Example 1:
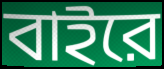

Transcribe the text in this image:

বাইরে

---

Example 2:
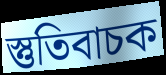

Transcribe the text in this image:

স্তুতিবাচক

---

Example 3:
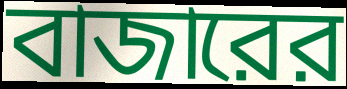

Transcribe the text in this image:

বাজারের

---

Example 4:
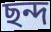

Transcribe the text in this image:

ছন্দ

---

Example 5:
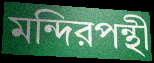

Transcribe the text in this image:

মন্দিরপন্থী